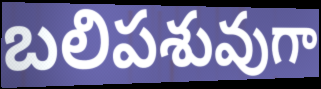
బలిపశువుగా